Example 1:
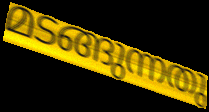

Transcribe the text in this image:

മടങ്ങുന്നതു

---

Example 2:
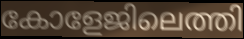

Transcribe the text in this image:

കോളേജിലെത്തി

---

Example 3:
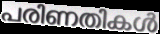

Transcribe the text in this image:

പരിണതികൾ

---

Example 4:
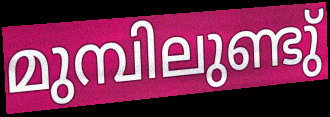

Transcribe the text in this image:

മുമ്പിലുണ്ടു്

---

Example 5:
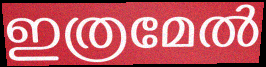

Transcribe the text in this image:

ഇത്രമേൽ